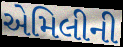
એમિલીની